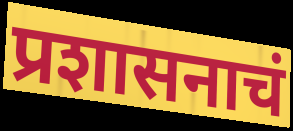
प्रशासनाचं